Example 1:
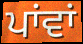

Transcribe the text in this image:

ਪਾਂਵਾਂ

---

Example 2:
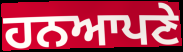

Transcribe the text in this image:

ਹਨਆਪਣੇ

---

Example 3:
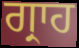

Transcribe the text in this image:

ਗ੍ਰਾਹ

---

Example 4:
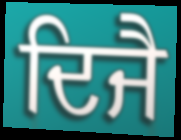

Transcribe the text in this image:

ਦਿਜੈ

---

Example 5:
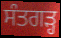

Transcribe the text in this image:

ਸੰਤਗੜ੍ਹ